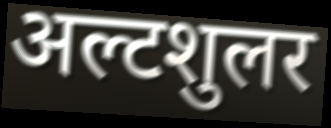
अल्टशुलर